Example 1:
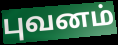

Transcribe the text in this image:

புவனம்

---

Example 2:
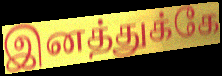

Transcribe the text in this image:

இனத்துக்கே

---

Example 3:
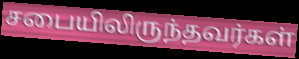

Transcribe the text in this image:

சபையிலிருந்தவர்கள்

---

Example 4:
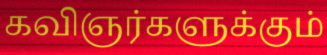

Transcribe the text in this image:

கவிஞர்களுக்கும்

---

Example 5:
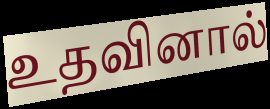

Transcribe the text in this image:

உதவினால்